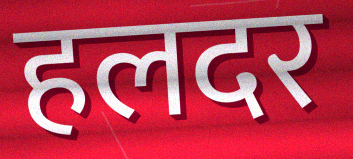
हलदर